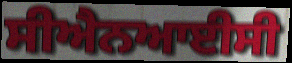
ਸੀਐਨਆਈਸੀ